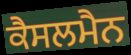
ਕੈਸਲਮੈਨ